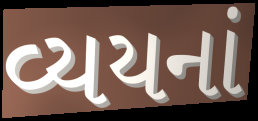
વ્યયનાં